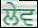
ਲੇਵ